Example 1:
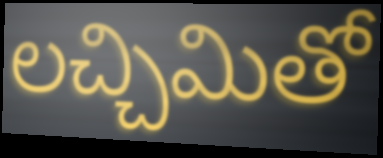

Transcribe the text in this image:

లచ్చిమితో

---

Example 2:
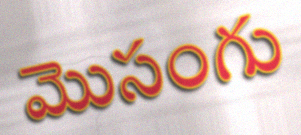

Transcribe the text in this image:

మొసంగు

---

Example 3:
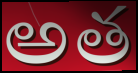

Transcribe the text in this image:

అత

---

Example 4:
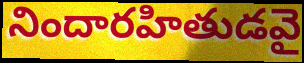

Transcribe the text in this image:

నిందారహితుడవై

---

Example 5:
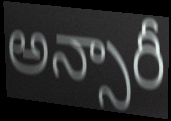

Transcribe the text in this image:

అన్సారీ